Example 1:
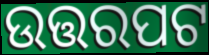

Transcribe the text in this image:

ଉତ୍ତରପଟ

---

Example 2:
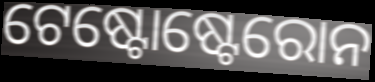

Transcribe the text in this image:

ଟେଷ୍ଟୋଷ୍ଟେରୋନ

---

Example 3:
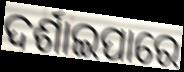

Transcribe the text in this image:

ଦର୍ଶାଇପାରେ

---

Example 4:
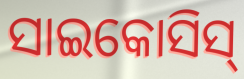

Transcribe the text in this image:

ସାଇକୋସିସ୍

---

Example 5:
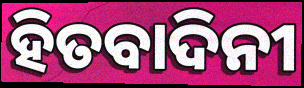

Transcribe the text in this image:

ହିତବାଦିନୀ